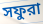
সফুরা